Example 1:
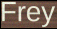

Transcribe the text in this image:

Frey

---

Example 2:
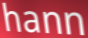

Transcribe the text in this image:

hann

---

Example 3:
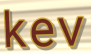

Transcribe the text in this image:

kev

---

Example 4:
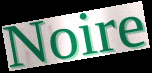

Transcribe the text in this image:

Noire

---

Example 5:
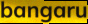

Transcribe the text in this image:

bangaru